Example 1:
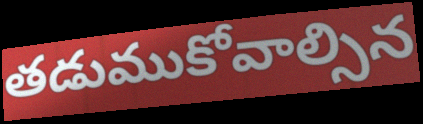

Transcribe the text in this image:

తడుముకోవాల్సిన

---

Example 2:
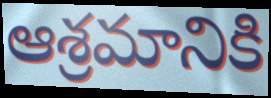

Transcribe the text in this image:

ఆశ్రమానికి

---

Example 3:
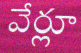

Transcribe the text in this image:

వేర్లూ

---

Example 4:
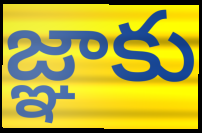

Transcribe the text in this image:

జ్ఞాకు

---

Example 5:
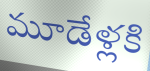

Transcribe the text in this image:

మూడేళ్లకి